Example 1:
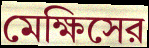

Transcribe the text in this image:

মেক্ষিসের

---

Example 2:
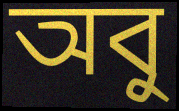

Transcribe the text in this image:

অবু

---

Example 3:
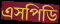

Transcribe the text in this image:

এসপিডি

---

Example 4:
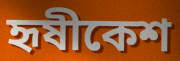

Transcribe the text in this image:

হৃষীকেশ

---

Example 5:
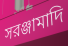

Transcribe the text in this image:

সরঞ্জামাদি